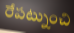
రేపట్నుంచి